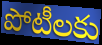
పోటీలకు